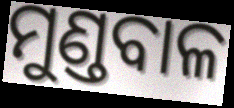
ମୁଣ୍ଡବାଳ